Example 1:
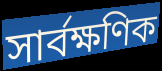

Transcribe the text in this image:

সার্বক্ষণিক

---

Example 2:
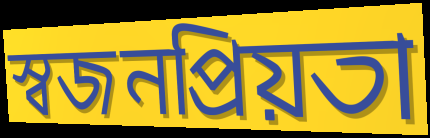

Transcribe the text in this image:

স্বজনপ্রিয়তা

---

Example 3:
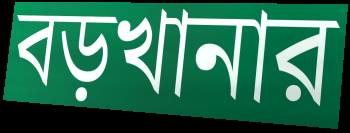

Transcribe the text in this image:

বড়খানার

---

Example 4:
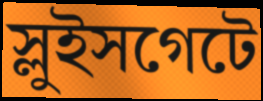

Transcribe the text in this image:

স্লুইসগেটে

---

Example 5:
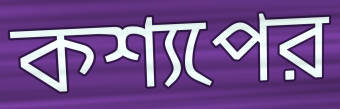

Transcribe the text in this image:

কশ্যপের